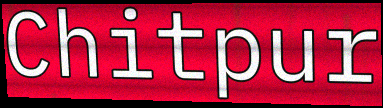
Chitpur